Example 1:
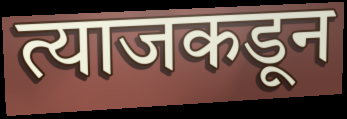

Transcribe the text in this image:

त्याजकडून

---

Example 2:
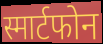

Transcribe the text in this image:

स्मार्टफोन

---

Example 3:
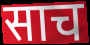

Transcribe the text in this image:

साच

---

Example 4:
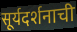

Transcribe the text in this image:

सूर्यदर्शनाची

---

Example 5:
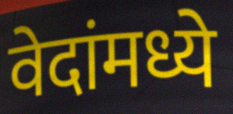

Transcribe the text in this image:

वेदांमध्ये